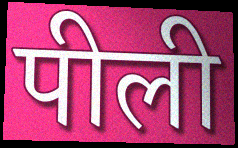
पीली